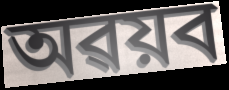
অৱয়ব